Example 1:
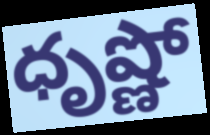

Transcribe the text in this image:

ధృష్ణో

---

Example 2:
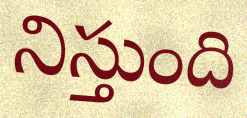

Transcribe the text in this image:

నిస్తుంది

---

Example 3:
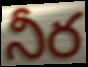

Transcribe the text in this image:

నీర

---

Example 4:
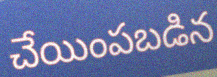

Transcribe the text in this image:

చేయింపబడిన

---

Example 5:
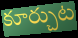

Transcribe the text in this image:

కూర్చుట